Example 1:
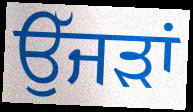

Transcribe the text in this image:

ਉੱਜੜਾਂ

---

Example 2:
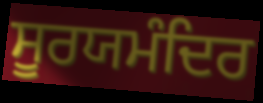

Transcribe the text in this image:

ਸੂਰਯਮੰਦਿਰ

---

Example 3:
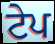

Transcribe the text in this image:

ਟੇਪ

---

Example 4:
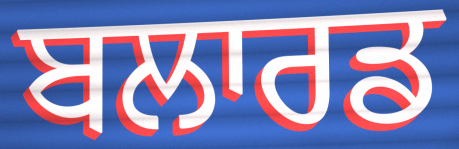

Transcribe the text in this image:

ਬਲਾਰਡ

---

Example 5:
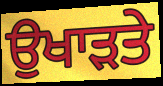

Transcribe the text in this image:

ਉਖਾੜਤੇ